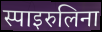
स्पाइरुलिना